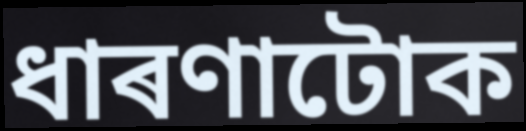
ধাৰণাটোক